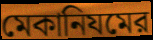
মেকানিযমের